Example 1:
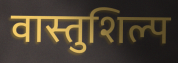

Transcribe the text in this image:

वास्तुशिल्प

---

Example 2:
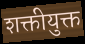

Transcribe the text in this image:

शक्तीयुक्त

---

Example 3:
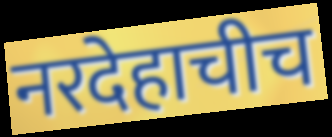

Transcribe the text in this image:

नरदेहाचीच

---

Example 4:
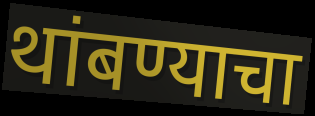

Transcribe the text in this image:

थांबण्याचा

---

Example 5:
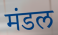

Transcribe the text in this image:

मंडल